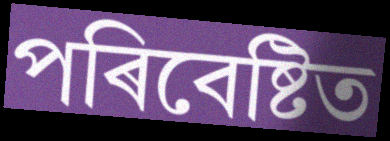
পৰিবেষ্টিত